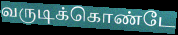
வருடிக்கொண்டே